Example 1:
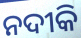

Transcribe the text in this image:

ନଦୀକି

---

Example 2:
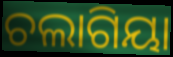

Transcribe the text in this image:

ଚଲାଗିୟା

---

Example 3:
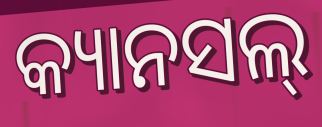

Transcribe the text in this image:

କ୍ୟାନସଲ୍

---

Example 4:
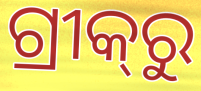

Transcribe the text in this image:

ଗ୍ରୀକ୍‌ରୁ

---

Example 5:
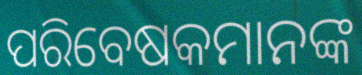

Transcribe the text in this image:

ପରିବେଷକମାନଙ୍କ